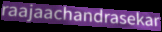
raajaachandrasekar